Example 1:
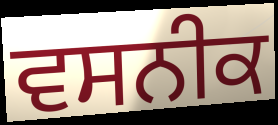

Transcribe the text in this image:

ਵਸਨੀਕ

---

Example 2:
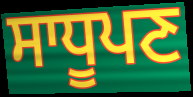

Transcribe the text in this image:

ਸਾਧੂਪਣ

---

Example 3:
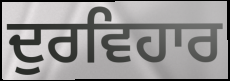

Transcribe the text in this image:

ਦੁਰਵਿਹਾਰ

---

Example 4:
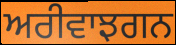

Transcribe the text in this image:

ਅਰੀਵਾਝਗਨ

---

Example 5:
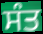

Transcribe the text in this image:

ਸੰਤ